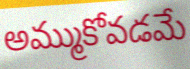
అమ్ముకోవడమే